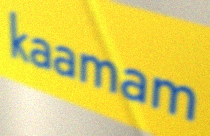
kaamam